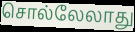
சொல்லேலாது